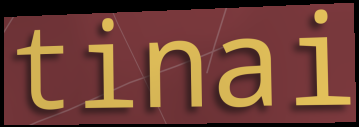
tinai